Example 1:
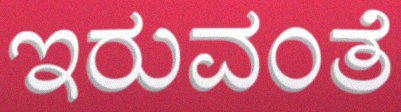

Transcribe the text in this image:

ಇರುವಂತೆ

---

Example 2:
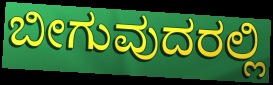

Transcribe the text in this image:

ಬೀಗುವುದರಲ್ಲಿ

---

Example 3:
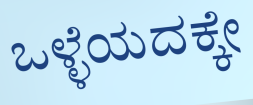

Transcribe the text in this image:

ಒಳ್ಳೆಯದಕ್ಕೇ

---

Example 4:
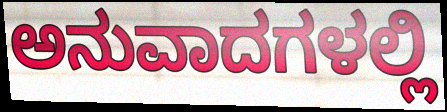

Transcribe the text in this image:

ಅನುವಾದಗಳಲ್ಲಿ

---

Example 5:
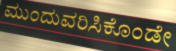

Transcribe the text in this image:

ಮುಂದುವರಿಸಿಕೊಂಡೇ